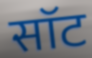
सॉट